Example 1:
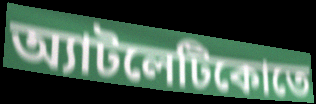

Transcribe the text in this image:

অ্যাটলেটিকোতে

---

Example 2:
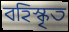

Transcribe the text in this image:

বহিস্কৃত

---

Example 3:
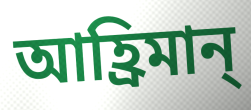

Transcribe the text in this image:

আহ্রিমান্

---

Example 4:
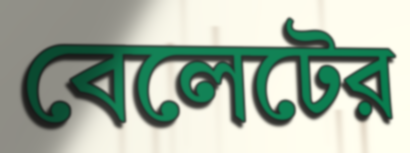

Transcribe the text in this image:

বেলেটের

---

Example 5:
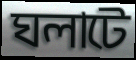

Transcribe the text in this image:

ঘলাটে